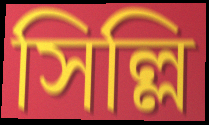
সিল্লি